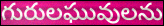
గురులఘువులను